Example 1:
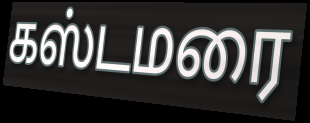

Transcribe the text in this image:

கஸ்டமரை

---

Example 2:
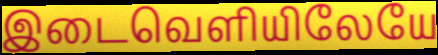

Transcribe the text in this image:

இடைவெளியிலேயே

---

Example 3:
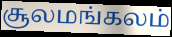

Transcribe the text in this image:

சூலமங்கலம்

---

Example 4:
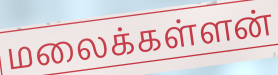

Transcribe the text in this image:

மலைக்கள்ளன்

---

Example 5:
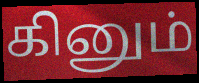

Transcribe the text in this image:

கினும்